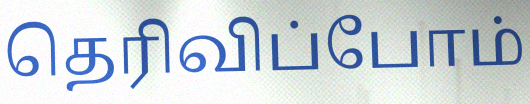
தெரிவிப்போம்